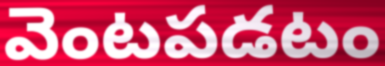
వెంటపడటం